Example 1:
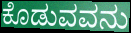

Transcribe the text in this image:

ಕೊಡುವವನು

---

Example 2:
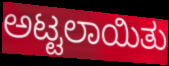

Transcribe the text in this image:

ಅಟ್ಟಲಾಯಿತು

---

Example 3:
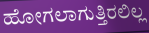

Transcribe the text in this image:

ಹೋಗಲಾಗುತ್ತಿರಲಿಲ್ಲ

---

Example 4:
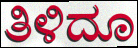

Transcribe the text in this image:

ತಿಳಿದೂ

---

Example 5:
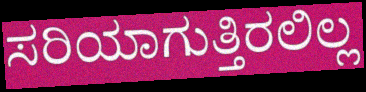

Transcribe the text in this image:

ಸರಿಯಾಗುತ್ತಿರಲಿಲ್ಲ